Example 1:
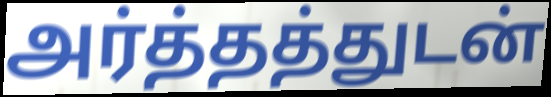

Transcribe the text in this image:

அர்த்தத்துடன்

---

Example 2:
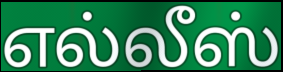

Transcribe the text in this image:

எல்லீஸ்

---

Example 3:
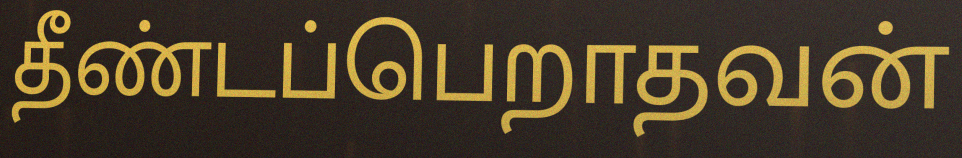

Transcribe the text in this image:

தீண்டப்பெறாதவன்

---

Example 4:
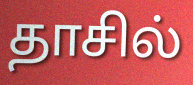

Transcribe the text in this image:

தாசில்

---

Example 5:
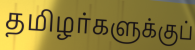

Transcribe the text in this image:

தமிழர்களுக்குப்